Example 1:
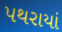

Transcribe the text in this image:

પથરાયાં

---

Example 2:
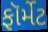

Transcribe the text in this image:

ફૉર્મેટ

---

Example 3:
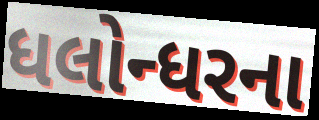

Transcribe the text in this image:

ધલોન્ધરના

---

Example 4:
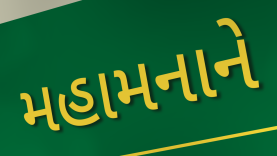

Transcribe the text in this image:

મહામનાને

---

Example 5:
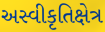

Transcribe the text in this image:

અસ્વીકૃતિક્ષેત્ર